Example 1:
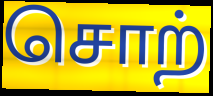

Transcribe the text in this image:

சொற்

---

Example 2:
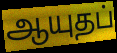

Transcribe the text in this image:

ஆயுதப்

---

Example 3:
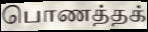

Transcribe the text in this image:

பொணத்தக்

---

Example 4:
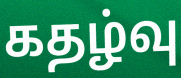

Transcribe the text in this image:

கதழ்வு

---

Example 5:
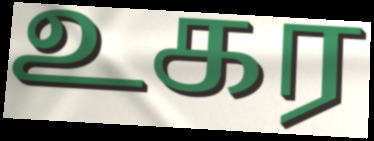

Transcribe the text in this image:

உகர